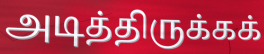
அடித்திருக்கக்